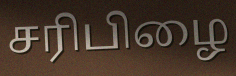
சரிபிழை